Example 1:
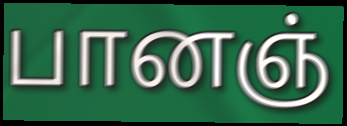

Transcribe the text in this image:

பானஞ்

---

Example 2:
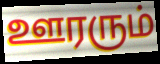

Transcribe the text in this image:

ஊரரும்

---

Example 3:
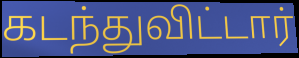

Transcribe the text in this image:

கடந்துவிட்டார்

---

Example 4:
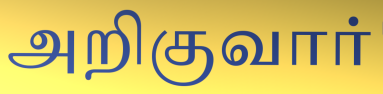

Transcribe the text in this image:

அறிகுவார்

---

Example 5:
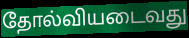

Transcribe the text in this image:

தோல்வியடைவது